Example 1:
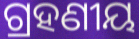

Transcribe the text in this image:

ଗ୍ରହଣୀୟ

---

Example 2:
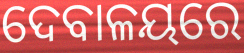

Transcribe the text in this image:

ଦେବାଳୟରେ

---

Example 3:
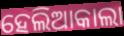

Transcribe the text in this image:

ହେଲିଆକାଲା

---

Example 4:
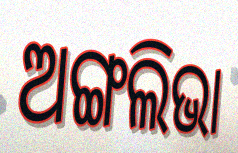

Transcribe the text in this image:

ଅଙ୍ଗଲିଭା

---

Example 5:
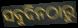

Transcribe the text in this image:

ସବୁଦିନଠାରୁ